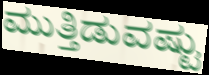
ಮುತ್ತಿಡುವಷ್ಟು